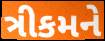
ત્રીકમને